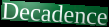
Decadence